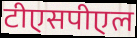
टीएसपीएल